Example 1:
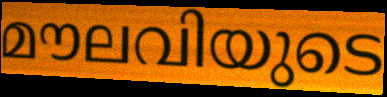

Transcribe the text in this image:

മൗലവിയുടെ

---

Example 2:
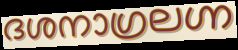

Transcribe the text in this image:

ദശനാഗ്രലഗ്ന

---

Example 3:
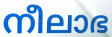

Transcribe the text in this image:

നീലാഭ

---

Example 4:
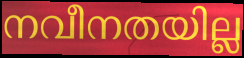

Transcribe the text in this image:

നവീനതയില്ല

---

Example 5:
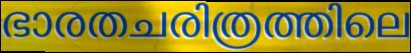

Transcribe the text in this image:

ഭാരതചരിത്രത്തിലെ